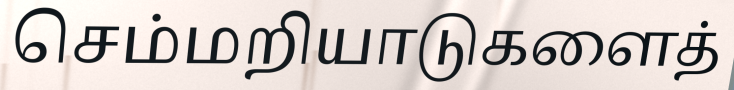
செம்மறியாடுகளைத்